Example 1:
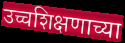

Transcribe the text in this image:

उच्चशिक्षणाच्या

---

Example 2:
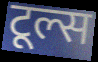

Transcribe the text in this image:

टूल्स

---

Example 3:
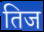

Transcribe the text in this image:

तिज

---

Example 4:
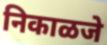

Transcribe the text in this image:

निकाळजे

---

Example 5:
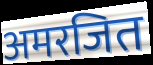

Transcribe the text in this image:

अमरजित